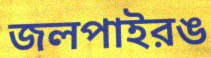
জলপাইরঙ